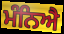
ਮੰਨਿਐ